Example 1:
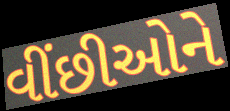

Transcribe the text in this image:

વીંછીઓને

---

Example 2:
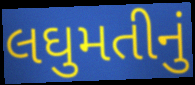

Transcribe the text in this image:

લઘુમતીનું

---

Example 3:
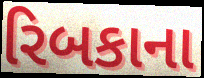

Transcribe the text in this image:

રિબકાના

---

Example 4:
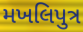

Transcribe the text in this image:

મખલિપુત્ર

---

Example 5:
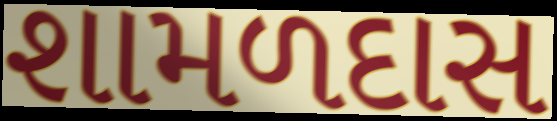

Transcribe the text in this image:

શામળદાસ